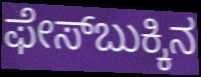
ಫೇಸ್‌ಬುಕ್ಕಿನ